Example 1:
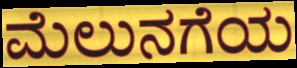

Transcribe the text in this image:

ಮೆಲುನಗೆಯ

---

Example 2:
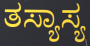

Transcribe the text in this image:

ತಸ್ಯಾಸ್ಯ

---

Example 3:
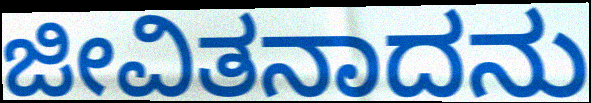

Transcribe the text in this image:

ಜೀವಿತನಾದನು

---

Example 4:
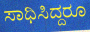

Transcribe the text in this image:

ಸಾಧಿಸಿದ್ದರೂ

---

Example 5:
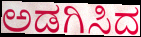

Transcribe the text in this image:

ಅಡಗಿಸಿದ